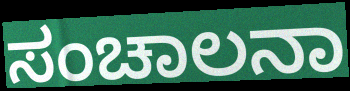
ಸಂಚಾಲನಾ